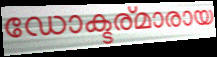
ഡോക്ടര്മാരായ